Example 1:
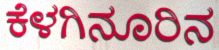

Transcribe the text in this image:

ಕೆಳಗಿನೂರಿನ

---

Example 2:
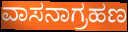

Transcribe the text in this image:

ವಾಸನಾಗ್ರಹಣ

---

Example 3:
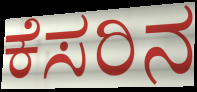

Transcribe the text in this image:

ಕೆಸರಿನ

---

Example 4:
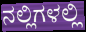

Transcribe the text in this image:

ನಲ್ಲಿಗಳಲ್ಲಿ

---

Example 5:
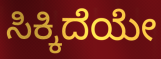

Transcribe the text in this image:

ಸಿಕ್ಕಿದೆಯೇ